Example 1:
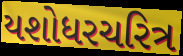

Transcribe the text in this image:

યશોધરચરિત્ર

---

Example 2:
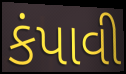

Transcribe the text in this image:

કંપાવી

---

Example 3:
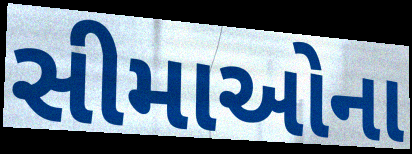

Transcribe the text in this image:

સીમાઓના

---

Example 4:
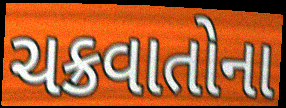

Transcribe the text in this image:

ચક્રવાતોના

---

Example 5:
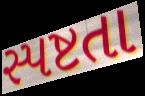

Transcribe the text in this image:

સ્પષ્ટતા